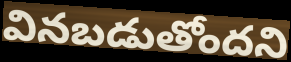
వినబడుతోందని